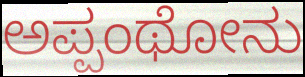
ಅಪ್ಪಂಥೋನು